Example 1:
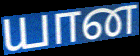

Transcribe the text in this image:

யான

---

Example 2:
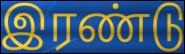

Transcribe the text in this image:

இரண்டு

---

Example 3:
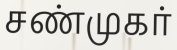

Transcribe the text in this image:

சண்முகர்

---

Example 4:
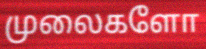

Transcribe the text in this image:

முலைகளோ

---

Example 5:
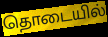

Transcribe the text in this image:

தொடையில்